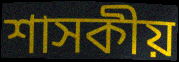
শাসকীয়